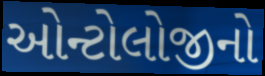
ઓન્ટોલોજીનો